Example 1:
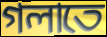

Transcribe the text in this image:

গলাতে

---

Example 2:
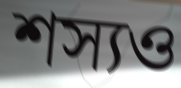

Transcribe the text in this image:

শস্যও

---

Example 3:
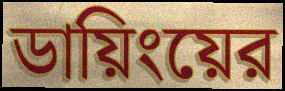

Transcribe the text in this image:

ডায়িংয়ের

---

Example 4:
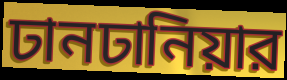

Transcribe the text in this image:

ঢানঢানিয়ার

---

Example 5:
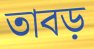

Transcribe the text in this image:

তাবড়